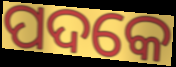
ପଦକେ